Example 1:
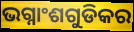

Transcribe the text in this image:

ଭଗ୍ନାଂଶଗୁଡିକର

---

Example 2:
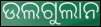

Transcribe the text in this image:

ଉଲଗୁଲାନ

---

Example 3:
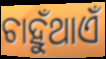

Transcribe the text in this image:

ଚାହୁଁଥାଏଁ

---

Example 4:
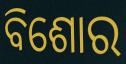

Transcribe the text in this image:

ବିଶୋର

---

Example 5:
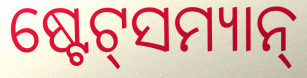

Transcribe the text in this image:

ଷ୍ଟେଟ୍‌ସମ୍ୟାନ୍